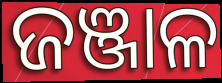
ଜଞ୍ଜାଳ